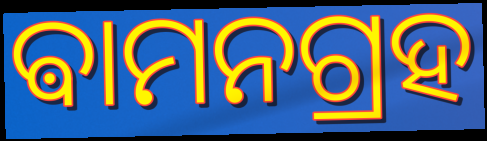
ଵାମନଗ୍ରହ